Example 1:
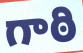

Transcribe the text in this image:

గాఠి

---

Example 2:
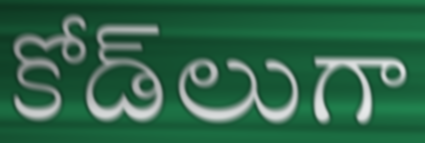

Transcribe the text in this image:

కోడ్‌లుగా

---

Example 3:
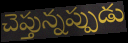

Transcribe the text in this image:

చెప్తున్నప్పుడు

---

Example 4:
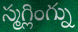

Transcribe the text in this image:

స్మగ్లింగ్ను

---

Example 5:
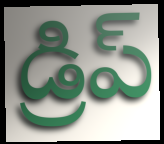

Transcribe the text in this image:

డ్రిప్